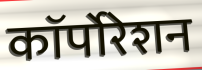
कॉर्पोरेशन